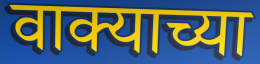
वाक्याच्या